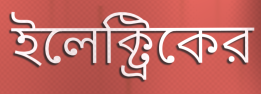
ইলেক্ট্রিকের